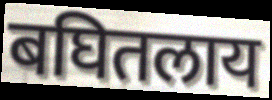
बघितलाय